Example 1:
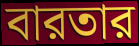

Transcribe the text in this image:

বারতার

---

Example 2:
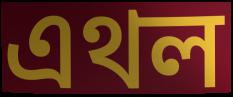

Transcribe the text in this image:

এথল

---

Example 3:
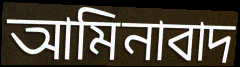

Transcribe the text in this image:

আমিনাবাদ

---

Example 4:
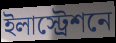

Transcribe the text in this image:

ইলাস্ট্রেশনে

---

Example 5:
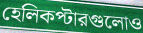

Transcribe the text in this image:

হেলিকপ্টারগুলোও